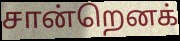
சான்றெனக்